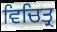
ਵਿਚਿਤ੍ਰ